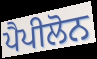
ਪੈਪੀਲੋਨ